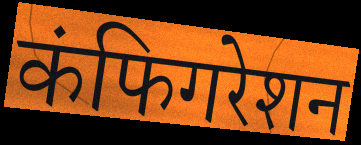
कंफिगरेशन